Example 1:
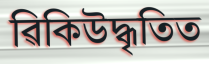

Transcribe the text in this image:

ৱিকিউদ্ধৃতিত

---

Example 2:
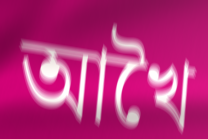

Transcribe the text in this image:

আখৈ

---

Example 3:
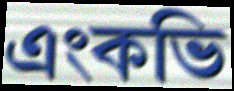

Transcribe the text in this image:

এংকভি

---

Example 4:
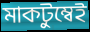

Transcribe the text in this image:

মাকটুম্বেই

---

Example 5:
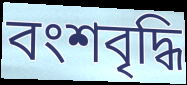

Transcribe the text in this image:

বংশবৃদ্ধি